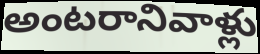
అంటరానివాళ్లు